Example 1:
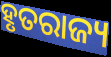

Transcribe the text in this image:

ହୃତରାଜ୍ୟ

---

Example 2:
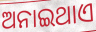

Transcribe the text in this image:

ଅନାଇଥାଏ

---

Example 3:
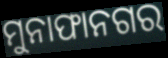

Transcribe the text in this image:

ମୁନାଫାନଗର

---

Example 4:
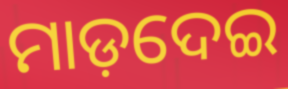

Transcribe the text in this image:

ମାଡ଼ଦେଇ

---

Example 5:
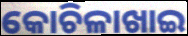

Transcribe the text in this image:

କୋଚିଳାଖାଇ